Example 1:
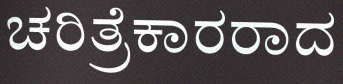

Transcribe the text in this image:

ಚರಿತ್ರೆಕಾರರಾದ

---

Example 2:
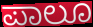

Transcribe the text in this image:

ಪಾಲೂ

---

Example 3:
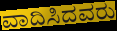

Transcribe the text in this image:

ವಾದಿಸಿದವರು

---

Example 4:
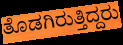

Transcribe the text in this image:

ತೊಡಗಿರುತ್ತಿದ್ದರು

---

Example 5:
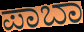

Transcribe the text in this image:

ಪಾಬಾ